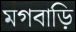
মগবাড়ি